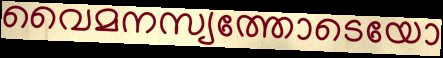
വൈമനസ്യത്തോടെയോ